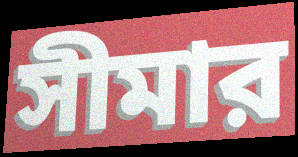
সীমার